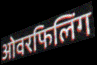
ओवरफिलिंग